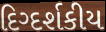
દિગ્દર્શકીય